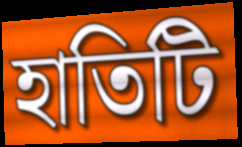
হাতিটি